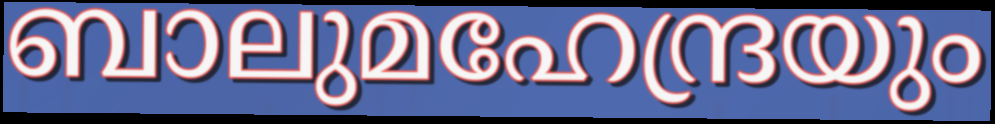
ബാലുമഹേന്ദ്രയും